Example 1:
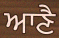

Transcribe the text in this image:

ਆਣੈ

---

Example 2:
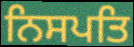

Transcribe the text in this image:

ਨਿਸਪਤਿ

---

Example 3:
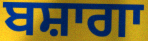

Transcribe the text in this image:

ਬਸ਼ਾਗਾ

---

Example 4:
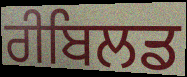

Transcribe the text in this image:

ਰੀਬਿਲਡ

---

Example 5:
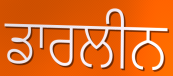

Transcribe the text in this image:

ਡਾਰਲੀਨ